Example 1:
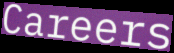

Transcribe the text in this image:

Careers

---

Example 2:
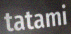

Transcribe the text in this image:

tatami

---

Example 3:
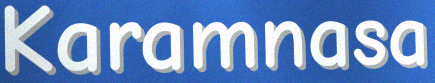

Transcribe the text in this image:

Karamnasa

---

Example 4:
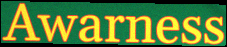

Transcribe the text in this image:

Awarness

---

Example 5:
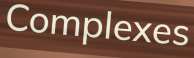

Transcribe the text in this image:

Complexes